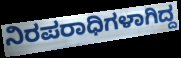
ನಿರಪರಾಧಿಗಳಾಗಿದ್ದ